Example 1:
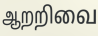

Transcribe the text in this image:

ஆறறிவை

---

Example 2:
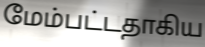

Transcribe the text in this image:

மேம்பட்டதாகிய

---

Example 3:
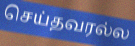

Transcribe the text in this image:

செய்தவரல்ல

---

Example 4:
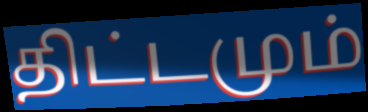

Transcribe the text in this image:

திட்டமும்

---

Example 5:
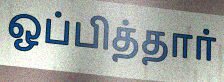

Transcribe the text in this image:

ஒப்பித்தார்